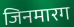
जिनमारग